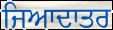
ਜਿਆਦਾਤਰ